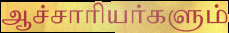
ஆச்சாரியர்களும்